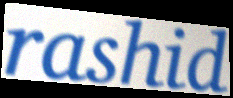
rashid